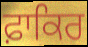
ਫ਼ਾਕਿਰ